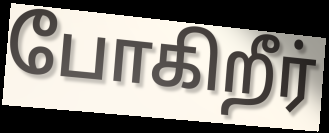
போகிறீர்